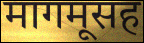
मागमूसह